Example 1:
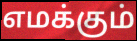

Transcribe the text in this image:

எமக்கும்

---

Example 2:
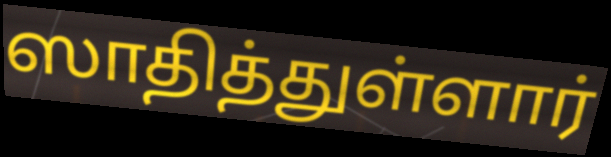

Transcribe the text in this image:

ஸாதித்துள்ளார்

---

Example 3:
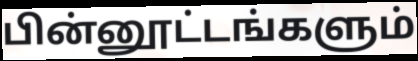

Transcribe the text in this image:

பின்னூட்டங்களும்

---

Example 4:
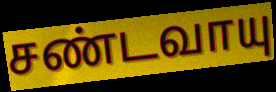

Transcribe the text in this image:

சண்டவாயு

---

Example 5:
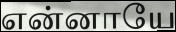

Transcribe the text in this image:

என்னாயே